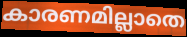
കാരണമില്ലാതെ